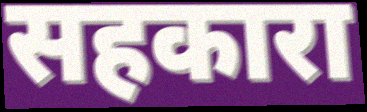
सहकारा